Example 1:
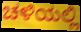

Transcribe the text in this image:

ಚಳಿಯಲ್ಲಿ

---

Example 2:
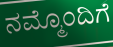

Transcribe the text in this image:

ನಮ್ಮೊಂದಿಗೆ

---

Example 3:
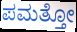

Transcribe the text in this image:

ಪಮತ್ತೋ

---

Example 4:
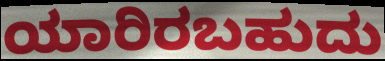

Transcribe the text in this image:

ಯಾರಿರಬಹುದು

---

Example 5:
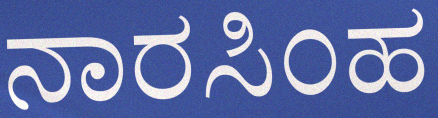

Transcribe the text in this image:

ನಾರಸಿಂಹ